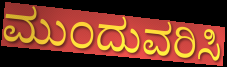
ಮುಂದುವರಿಸಿ